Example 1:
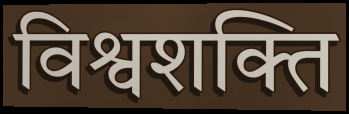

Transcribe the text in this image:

विश्वशक्ति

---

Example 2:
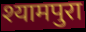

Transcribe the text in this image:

श्यामपुरा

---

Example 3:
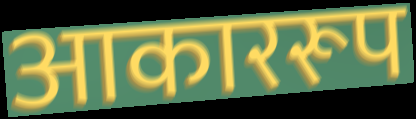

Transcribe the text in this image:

आकाररूप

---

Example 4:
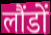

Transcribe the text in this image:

लौंडों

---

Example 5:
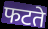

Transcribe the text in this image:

फटते